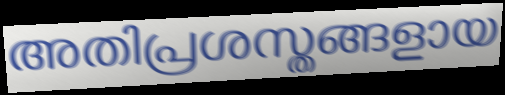
അതിപ്രശസ്തങ്ങളായ